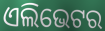
ଏଲିଭେଟର